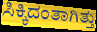
ಸಿಕ್ಕಿದಂತಾಗಿತ್ತು